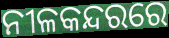
ନୀଳକନ୍ଦରରେ